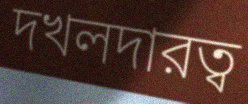
দখলদারত্ব